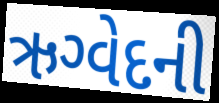
ઋગ્વેદની